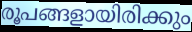
രൂപങ്ങളായിരിക്കും